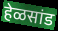
हेळसांड